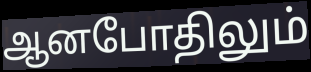
ஆனபோதிலும்